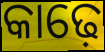
କାଢ଼େ